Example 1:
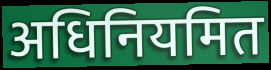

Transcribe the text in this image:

अधिनियमित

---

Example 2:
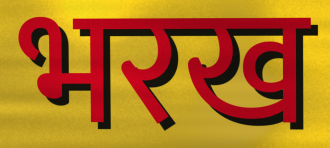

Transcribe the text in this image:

भरख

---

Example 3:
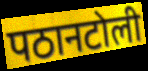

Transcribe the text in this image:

पठानटोली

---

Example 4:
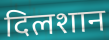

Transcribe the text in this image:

दिलशान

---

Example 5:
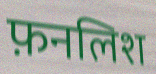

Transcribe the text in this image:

फ़नलिश